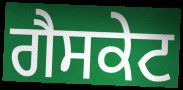
ਗੈਸਕੇਟ